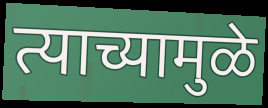
त्याच्यामुळे